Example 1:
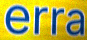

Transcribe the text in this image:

erra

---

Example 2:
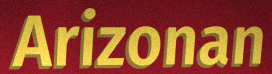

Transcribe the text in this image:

Arizonan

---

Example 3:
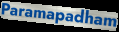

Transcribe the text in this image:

Paramapadham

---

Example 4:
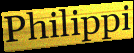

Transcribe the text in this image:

Philippi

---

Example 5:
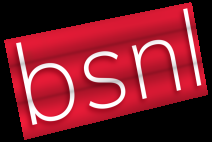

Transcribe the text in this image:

bsnl